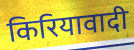
किरियावादी